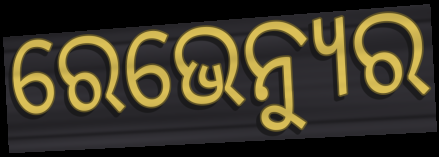
ରେଭେନ୍ୟୁର